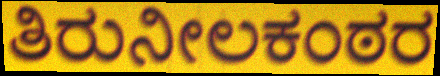
ತಿರುನೀಲಕಂಠರ